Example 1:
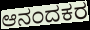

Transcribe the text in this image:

ಆನಂದಕರ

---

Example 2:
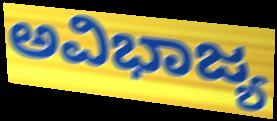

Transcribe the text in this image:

ಅವಿಭಾಜ್ಯ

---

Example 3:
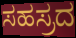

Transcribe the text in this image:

ಸಹಸ್ರದ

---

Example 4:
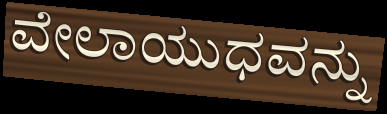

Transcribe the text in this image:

ವೇಲಾಯುಧವನ್ನು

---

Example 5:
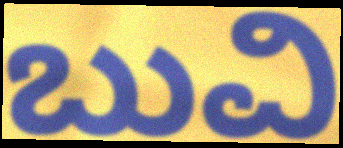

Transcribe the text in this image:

ಬುವಿ